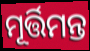
ମୂର୍ତ୍ତିମନ୍ତ